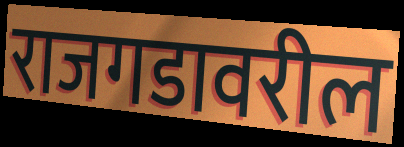
राजगडावरील